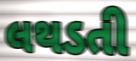
લથડતી